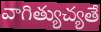
వాగిత్యుచ్యతే